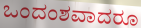
ಒಂದಂಶವಾದರೂ